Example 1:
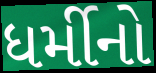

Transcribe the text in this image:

ધર્મીનો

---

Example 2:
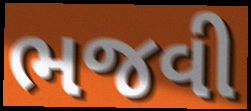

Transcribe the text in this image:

ભજવી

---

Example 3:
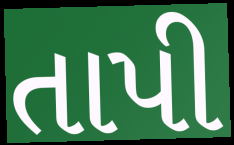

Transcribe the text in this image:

તાપી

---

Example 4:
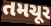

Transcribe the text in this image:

તમચૂર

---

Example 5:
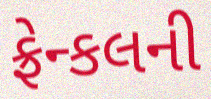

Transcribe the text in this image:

ફ્રેન્કલની